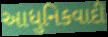
આધુનિકવાદી